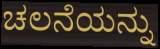
ಚಲನೆಯನ್ನು